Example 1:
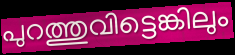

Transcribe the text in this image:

പുറത്തുവിട്ടെങ്കിലും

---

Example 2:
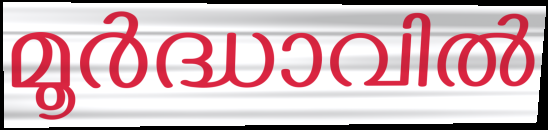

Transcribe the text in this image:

മൂർദ്ധാവിൽ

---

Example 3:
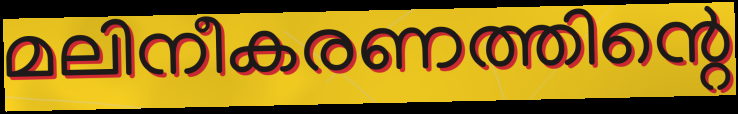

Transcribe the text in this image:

മലിനീകരണത്തിന്റെ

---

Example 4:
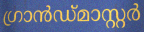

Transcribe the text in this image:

ഗ്രാൻഡ്മാസ്റ്റർ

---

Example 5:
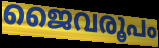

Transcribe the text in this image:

ജൈവരൂപം